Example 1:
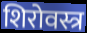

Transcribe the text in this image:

शिरोवस्त्र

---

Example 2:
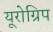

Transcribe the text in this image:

यूरोग्रिप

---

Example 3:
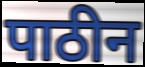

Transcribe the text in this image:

पाठीन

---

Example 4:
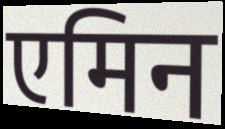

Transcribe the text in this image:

एमिन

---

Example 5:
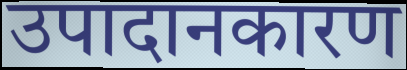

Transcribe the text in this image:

उपादानकारण